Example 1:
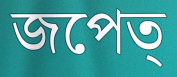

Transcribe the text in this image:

জপেত্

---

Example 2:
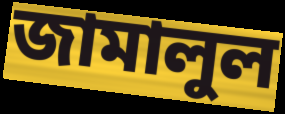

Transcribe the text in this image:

জামালুল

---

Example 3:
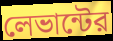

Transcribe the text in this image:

লেভান্টের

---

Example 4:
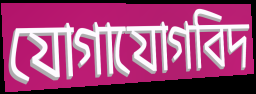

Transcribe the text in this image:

যোগাযোগবিদ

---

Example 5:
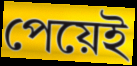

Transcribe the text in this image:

পেয়েই